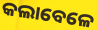
କଲାବେଳେ